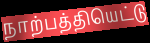
நாற்பத்தியெட்டு